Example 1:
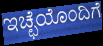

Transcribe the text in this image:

ಇಚ್ಛೆಯೊಂದಿಗೆ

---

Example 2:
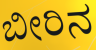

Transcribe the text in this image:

ಬೀರಿನ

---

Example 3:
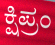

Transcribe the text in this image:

ಕ್ಷಿಪ್ರಂ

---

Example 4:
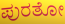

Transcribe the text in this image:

ಪುರತೋ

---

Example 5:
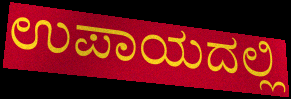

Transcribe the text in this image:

ಉಪಾಯದಲ್ಲಿ